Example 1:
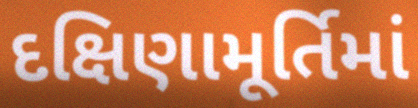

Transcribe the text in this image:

દક્ષિણામૂર્તિમાં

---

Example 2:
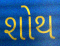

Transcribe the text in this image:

શોથ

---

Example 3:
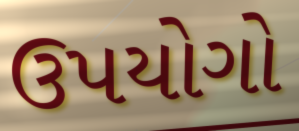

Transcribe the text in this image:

ઉપયોગો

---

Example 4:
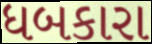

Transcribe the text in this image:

ધબકારા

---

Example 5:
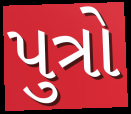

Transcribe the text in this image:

પુત્રો